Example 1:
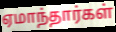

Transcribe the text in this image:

ஏமாந்தார்கள்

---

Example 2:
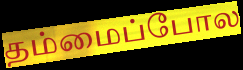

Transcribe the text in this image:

தம்மைப்போல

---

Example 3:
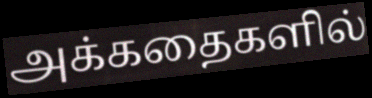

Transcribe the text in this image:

அக்கதைகளில்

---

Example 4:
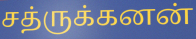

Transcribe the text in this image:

சத்ருக்கனன்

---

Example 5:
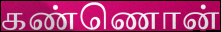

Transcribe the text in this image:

கண்ணொன்